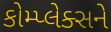
કોમ્પ્લેક્સને